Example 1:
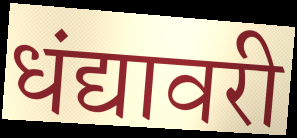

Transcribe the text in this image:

धंद्यावरी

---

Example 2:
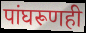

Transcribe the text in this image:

पांघरूणही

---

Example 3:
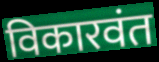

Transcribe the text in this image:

विकारवंत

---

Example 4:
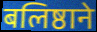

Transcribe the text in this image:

बलिष्ठाने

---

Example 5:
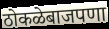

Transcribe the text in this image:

ठोकळेबाजपणा